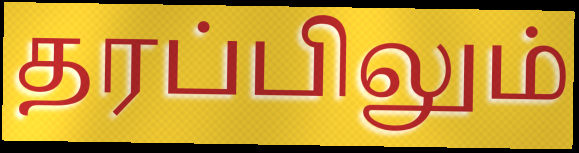
தரப்பிலும்